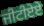
ਜੀਟੀਏਏ